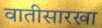
वातीसारखा